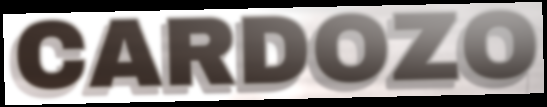
CARDOZO